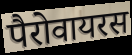
पैरोवायरस